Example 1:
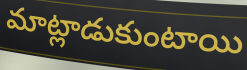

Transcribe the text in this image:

మాట్లాడుకుంటాయి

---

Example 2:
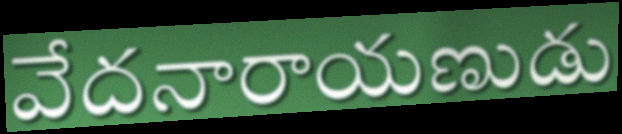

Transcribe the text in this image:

వేదనారాయణుడు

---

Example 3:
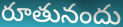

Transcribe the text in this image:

రూతునందు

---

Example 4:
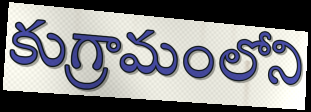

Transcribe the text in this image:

కుగ్రామంలోని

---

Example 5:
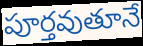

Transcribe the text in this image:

పూర్తవుతూనే